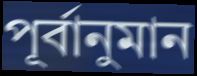
পূৰ্বানুমান